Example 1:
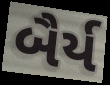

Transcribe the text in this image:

બૈર્ય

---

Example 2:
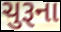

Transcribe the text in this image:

ચુરૂના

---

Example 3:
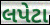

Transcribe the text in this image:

લપેટા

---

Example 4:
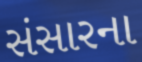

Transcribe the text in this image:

સંસારના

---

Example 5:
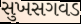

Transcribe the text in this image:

સુખસગવડ